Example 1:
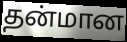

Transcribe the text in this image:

தன்மான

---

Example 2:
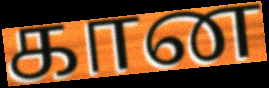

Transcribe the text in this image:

கான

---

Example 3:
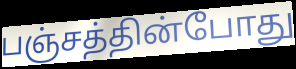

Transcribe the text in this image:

பஞ்சத்தின்போது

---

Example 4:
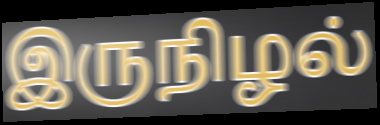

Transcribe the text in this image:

இருநிழல்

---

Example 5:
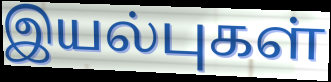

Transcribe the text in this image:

இயல்புகள்